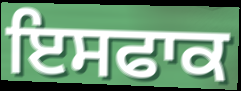
ਇਸਫਾਕ